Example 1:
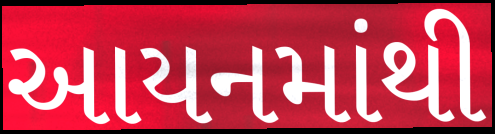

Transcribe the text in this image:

આયનમાંથી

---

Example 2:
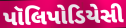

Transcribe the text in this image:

પૉલિપોડિયેસી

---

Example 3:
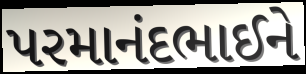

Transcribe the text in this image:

પરમાનંદભાઈને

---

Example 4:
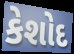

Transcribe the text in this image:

કેશોદ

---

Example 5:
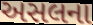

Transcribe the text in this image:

અસલના